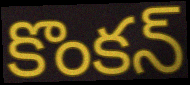
కొంకన్